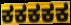
ಕಕಕಕಕ